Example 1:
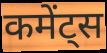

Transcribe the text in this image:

कमेंट्स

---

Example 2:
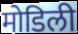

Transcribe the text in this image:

मोडिली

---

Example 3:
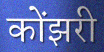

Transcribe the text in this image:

कोंझरी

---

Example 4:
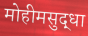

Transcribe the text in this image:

मोहीमसुद्धा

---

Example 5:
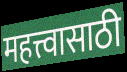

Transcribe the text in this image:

महत्त्वासाठी